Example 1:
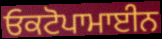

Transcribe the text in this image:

ਓਕਟੋਪਾਮਾਈਨ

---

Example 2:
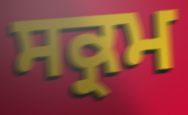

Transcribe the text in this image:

ਸਕ੍ਰਮ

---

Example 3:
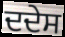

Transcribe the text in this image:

ਦਦੇਸ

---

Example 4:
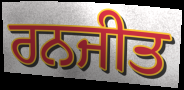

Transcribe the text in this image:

ਰਨਜੀਤ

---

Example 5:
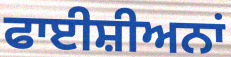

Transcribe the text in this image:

ਫਾਈਸ਼ੀਅਨਾਂ